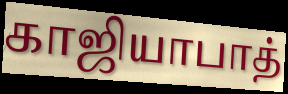
காஜியாபாத்